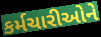
કર્મચારીઓને